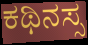
ಕಥಿನಸ್ಸ